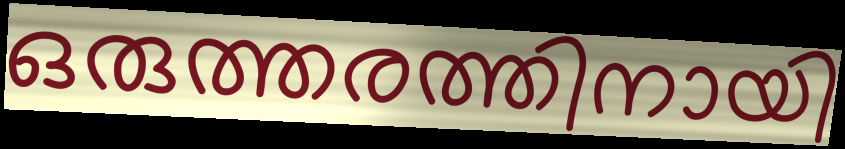
ഒരുത്തരത്തിനായി